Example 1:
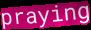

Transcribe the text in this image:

praying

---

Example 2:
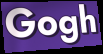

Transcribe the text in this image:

Gogh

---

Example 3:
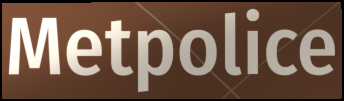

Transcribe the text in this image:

Metpolice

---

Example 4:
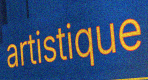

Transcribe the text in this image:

artistique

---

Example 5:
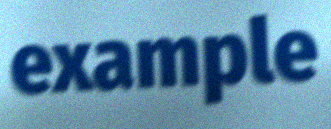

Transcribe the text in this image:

example